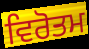
ਵਿਰੋਤਮ